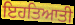
ਇਹਤਿਆਤੀ